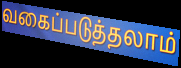
வகைப்படுத்தலாம்